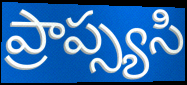
ప్రాప్స్యసి